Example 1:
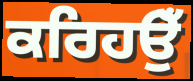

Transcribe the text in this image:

ਕਰਿਹਉਁ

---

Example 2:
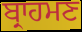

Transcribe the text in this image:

ਬ੍ਰਾਹਮਣ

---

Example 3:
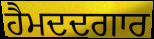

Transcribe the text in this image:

ਹੈਮਦਦਗਾਰ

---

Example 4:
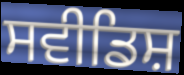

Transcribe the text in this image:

ਸਵੀਡਿਸ਼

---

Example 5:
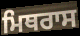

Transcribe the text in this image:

ਮਿਥਰਾਸ